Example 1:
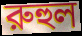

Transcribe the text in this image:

রুহুল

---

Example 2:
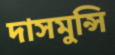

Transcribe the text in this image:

দাসমুন্সি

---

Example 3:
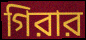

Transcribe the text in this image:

গিরার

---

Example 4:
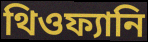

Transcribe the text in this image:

থিওফ্যানি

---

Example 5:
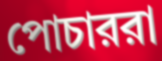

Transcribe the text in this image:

পোচাররা